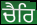
ਚੈਰਿ